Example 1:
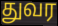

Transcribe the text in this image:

துவர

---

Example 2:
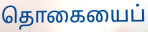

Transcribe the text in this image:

தொகையைப்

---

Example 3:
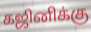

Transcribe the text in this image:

கஜினிக்கு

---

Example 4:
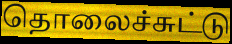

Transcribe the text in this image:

தொலைச்சுட்டு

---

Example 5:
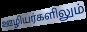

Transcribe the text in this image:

ஊழியர்களிலும்